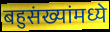
बहुसंख्यांमध्ये